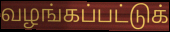
வழங்கப்பட்டுக்